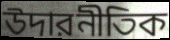
উদারনীতিক